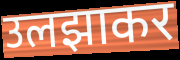
उलझाकर